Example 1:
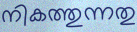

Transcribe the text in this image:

നികത്തുന്നതു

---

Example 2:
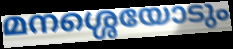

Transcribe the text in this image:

മനശ്ശെയോടും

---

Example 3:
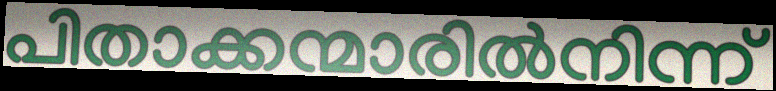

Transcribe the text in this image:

പിതാക്കന്മാരിൽനിന്ന്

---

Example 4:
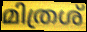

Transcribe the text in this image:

മിത്രശ്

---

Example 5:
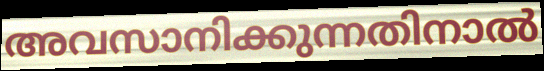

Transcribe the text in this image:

അവസാനിക്കുന്നതിനാൽ